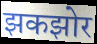
झकझोर